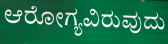
ಆರೋಗ್ಯವಿರುವುದು